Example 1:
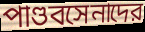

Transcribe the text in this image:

পাণ্ডবসেনাদের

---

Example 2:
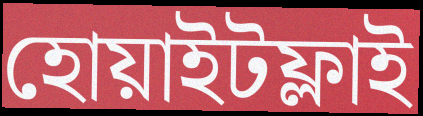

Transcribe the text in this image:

হোয়াইটফ্লাই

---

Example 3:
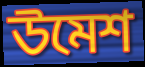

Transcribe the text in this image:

উমেশ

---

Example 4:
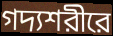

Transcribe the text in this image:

গদ্যশরীরে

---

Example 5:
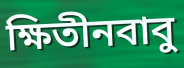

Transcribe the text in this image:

ক্ষিতীনবাবু